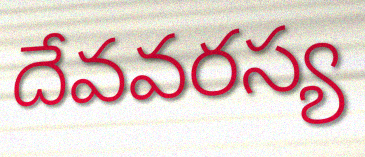
దేవవరస్య